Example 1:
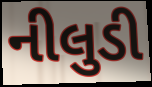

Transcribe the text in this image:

નીલુડી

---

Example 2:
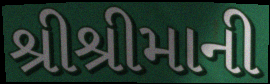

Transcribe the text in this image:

શ્રીશ્રીમાની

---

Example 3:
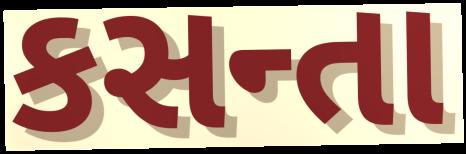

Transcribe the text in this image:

કસન્તા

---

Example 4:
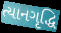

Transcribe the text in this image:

ત્યાનગૃદ્ધિ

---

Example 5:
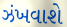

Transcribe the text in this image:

ઝંખવાશે